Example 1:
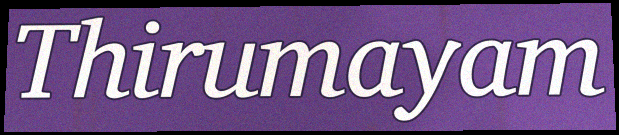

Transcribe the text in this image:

Thirumayam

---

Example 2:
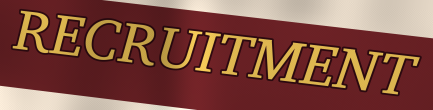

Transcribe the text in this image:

RECRUITMENT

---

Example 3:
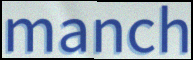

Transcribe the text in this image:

manch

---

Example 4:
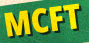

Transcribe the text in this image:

MCFT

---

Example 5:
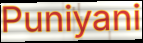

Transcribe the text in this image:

Puniyani